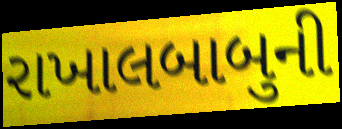
રાખાલબાબુની